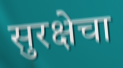
सुरक्षेचा